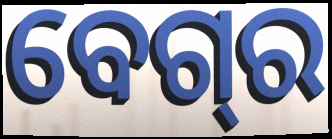
ବେଗ୍‌ର